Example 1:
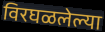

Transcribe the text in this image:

विरघळलेल्या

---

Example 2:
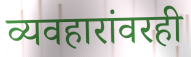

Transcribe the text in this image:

व्यवहारांवरही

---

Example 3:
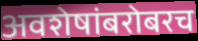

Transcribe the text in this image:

अवशेषांबरोबरच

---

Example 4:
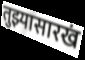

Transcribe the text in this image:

तुझ्यासारखं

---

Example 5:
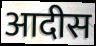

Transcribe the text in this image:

आदीस